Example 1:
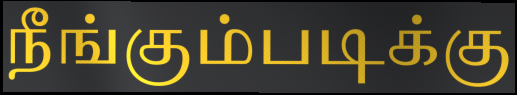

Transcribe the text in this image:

நீங்கும்படிக்கு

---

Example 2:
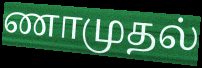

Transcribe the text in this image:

ணாமுதல்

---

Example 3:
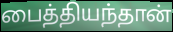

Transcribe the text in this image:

பைத்தியந்தான்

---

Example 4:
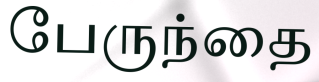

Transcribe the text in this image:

பேருந்தை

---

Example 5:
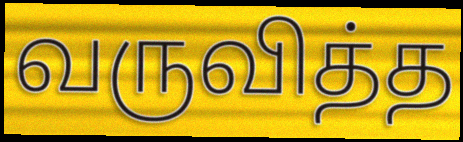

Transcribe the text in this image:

வருவித்த